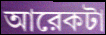
আরেকটা